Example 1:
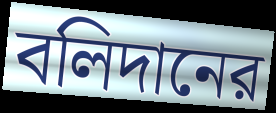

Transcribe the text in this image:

বলিদানের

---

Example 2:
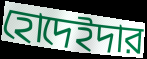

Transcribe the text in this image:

হোদেইদার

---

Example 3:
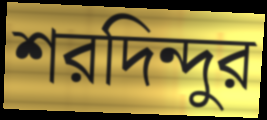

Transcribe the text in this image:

শরদিন্দুর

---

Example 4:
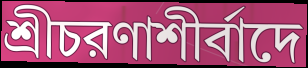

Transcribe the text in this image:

শ্রীচরণাশীর্বাদে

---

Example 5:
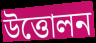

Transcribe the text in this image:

উত্তোলন